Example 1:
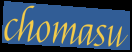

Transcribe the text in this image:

chomasu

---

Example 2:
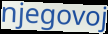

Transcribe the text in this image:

njegovoj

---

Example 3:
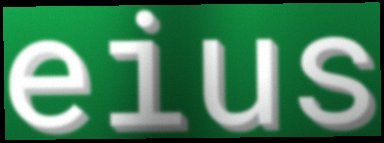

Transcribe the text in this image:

eius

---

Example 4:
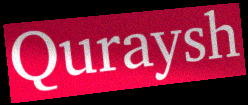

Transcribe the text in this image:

Quraysh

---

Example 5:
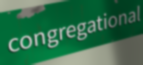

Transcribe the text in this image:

congregational